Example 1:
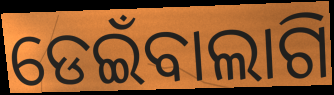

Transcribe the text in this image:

ଡେଇଁବାଲାଗି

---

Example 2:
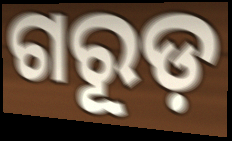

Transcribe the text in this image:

ଗରୂଡ଼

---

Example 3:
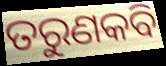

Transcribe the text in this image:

ତରୁଣକବି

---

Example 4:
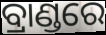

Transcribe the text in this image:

ବ୍ରାଣ୍ଡରେ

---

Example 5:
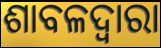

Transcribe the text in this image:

ଶାବଳଦ୍ୱାରା